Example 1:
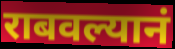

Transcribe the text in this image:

राबवल्यानं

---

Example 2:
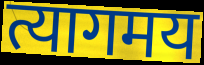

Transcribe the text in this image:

त्यागमय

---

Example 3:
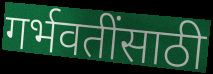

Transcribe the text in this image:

गर्भवतींसाठी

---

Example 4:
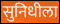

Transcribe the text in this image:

सुनिधीला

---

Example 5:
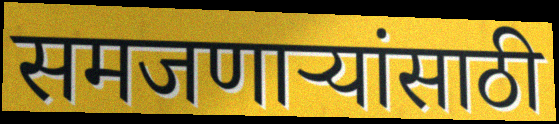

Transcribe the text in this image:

समजणाऱ्यांसाठी